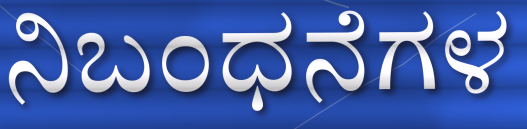
ನಿಬಂಧನೆಗಳ